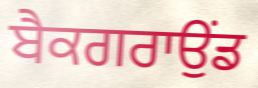
ਬੈਕਗਰਾਉਂਡ